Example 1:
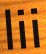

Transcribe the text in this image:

lii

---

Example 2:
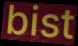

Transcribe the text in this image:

bist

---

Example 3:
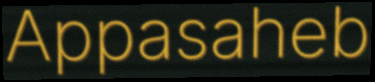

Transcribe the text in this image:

Appasaheb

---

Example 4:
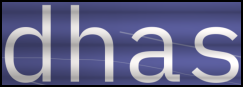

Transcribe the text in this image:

dhas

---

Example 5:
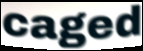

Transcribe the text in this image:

caged